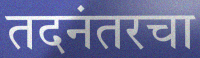
तदनंतरचा